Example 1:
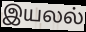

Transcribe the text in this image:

இயலல்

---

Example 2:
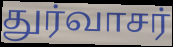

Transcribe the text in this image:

துர்வாசர்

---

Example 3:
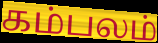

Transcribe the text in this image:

கம்பலம்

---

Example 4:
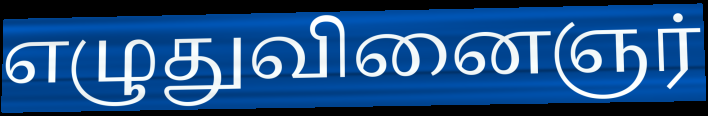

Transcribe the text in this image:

எழுதுவினைஞர்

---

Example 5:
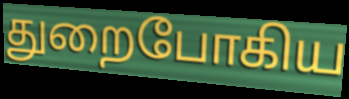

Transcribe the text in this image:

துறைபோகிய